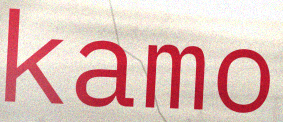
kamo